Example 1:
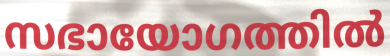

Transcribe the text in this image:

സഭായോഗത്തിൽ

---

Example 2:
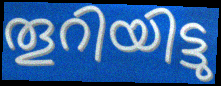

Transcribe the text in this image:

തൂറിയിട്ടു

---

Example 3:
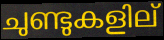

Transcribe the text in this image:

ചുണ്ടുകളില്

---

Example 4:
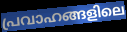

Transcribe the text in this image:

പ്രവാഹങ്ങളിലെ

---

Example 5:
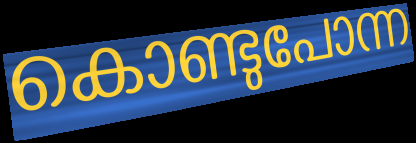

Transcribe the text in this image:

കൊണ്ടുപോന്ന